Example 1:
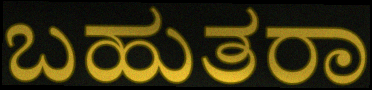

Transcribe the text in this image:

ಬಹುತರಾ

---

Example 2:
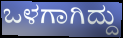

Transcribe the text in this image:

ಒಳಗಾಗಿದ್ದು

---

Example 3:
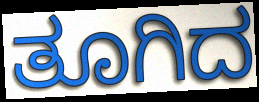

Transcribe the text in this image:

ತೂಗಿದ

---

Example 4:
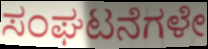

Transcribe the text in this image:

ಸಂಘಟನೆಗಳೇ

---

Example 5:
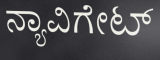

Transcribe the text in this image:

ನ್ಯಾವಿಗೇಟ್